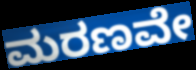
ಮರಣವೇ